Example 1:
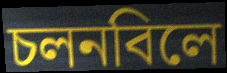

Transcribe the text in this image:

চলনবিলে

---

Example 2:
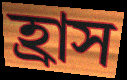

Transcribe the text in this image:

হ্রাস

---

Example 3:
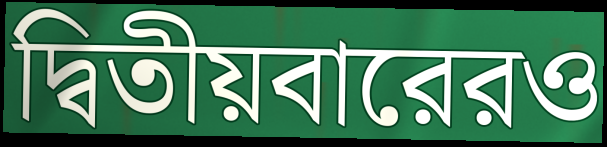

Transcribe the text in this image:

দ্বিতীয়বারেরও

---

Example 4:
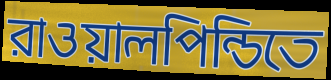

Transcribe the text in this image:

রাওয়ালপিন্ডিতে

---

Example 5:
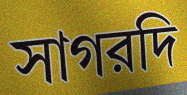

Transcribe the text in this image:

সাগরদি